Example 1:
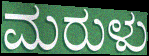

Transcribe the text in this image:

ಮರುಳು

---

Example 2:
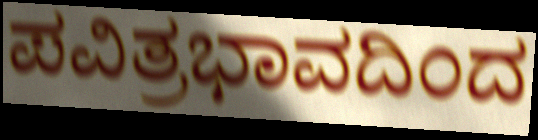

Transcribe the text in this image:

ಪವಿತ್ರಭಾವದಿಂದ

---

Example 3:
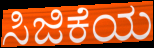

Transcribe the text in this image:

ಸಿಜಿಕೆಯ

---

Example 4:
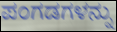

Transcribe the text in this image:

ಪಂಗಡಗಳನ್ನು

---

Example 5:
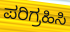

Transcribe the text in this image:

ಪರಿಗ್ರಹಿಸಿ